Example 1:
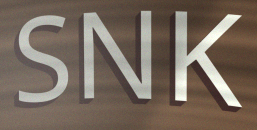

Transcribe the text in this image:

SNK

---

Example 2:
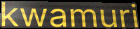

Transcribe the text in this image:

kwamuri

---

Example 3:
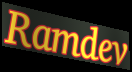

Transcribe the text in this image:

Ramdev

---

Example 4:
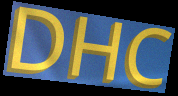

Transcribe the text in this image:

DHC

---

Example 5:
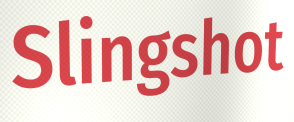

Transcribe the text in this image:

Slingshot